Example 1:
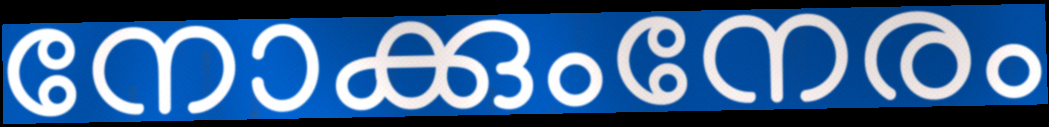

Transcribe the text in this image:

നോക്കുംനേരം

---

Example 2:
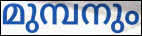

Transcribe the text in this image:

മുമ്പനും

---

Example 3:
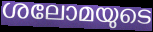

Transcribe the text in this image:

ശലോമയുടെ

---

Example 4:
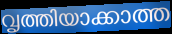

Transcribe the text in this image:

വൃത്തിയാക്കാത്ത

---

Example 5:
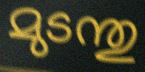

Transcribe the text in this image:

മുടന്തു